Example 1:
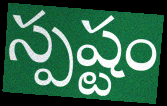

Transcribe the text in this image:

స్పష్టం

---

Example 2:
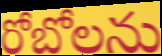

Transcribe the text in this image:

రోబోలను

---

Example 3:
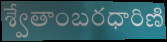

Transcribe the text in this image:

శ్వేతాంబరధారిణి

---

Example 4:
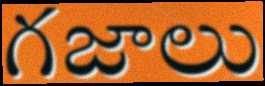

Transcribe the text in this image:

గజాలు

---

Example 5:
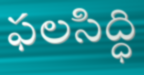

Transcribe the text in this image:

ఫలసిద్ధి